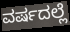
ವರ್ಷದಲ್ಲೆ